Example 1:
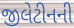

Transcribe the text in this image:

જીલેટીનની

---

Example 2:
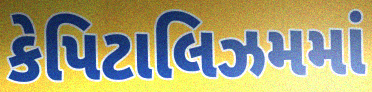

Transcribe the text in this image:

કેપિટાલિઝમમાં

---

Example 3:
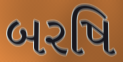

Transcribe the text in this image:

બરષિ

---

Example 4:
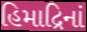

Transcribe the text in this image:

હિમાદ્રિનાં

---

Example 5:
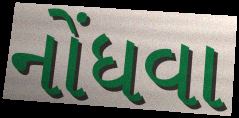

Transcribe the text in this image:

નોંધવા